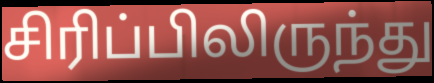
சிரிப்பிலிருந்து